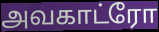
அவகாட்ரோ